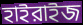
হাইরাইজ